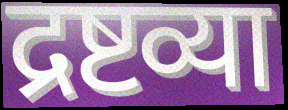
द्रष्टव्या